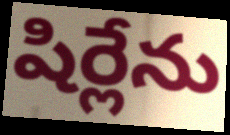
షిర్లేను